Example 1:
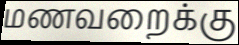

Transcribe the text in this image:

மணவறைக்கு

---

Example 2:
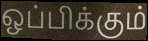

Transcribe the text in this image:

ஒப்பிக்கும்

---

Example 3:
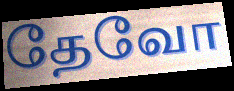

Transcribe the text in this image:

தேவோ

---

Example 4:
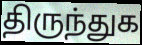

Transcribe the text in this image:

திருந்துக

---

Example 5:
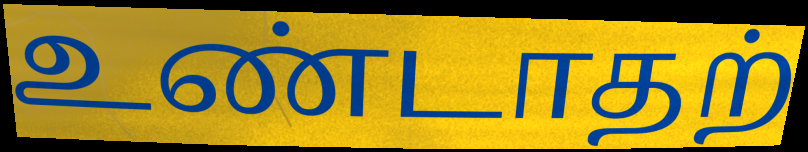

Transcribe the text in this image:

உண்டாதற்